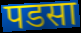
पडसा